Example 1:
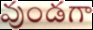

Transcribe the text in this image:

వుండగా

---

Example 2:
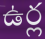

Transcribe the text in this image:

ఉర్ల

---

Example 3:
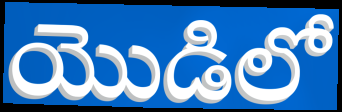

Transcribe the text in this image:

యొడిలో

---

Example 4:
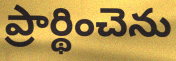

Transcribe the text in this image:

ప్రార్థించెను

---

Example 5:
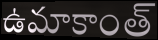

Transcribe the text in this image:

ఉమాకాంత్